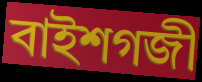
বাইশগজী